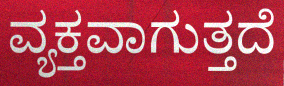
ವ್ಯಕ್ತವಾಗುತ್ತದೆ